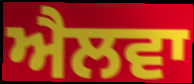
ਐਲਵਾ